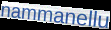
nammanellu